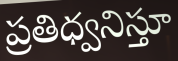
ప్రతిధ్వనిస్తూ